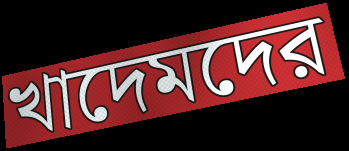
খাদেমদের